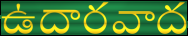
ఉదారవాద